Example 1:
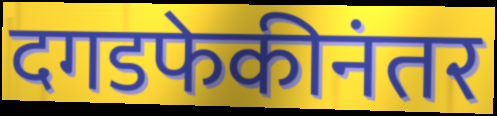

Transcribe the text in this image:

दगडफेकीनंतर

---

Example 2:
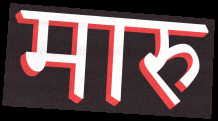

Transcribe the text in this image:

मारु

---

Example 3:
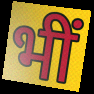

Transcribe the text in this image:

भीं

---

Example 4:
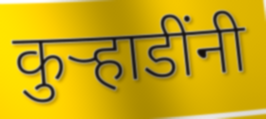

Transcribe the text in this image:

कुर्‍हाडींनी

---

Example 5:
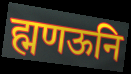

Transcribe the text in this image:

ह्मणऊनि